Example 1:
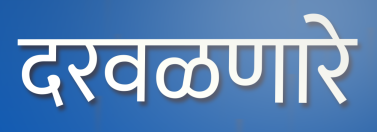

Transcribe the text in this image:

दरवळणारे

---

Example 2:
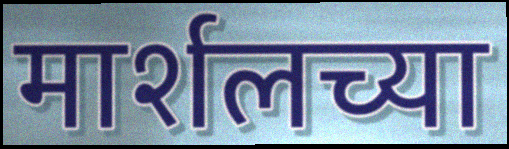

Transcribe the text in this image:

मार्शलच्या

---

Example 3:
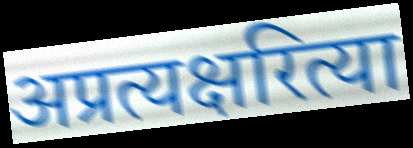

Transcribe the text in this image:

अप्रत्यक्षरित्या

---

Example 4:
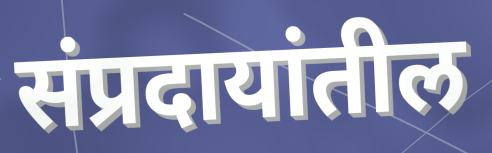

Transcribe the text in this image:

संप्रदायांतील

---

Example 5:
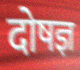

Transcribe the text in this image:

दोषज्ञ